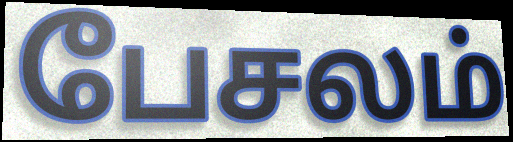
பேசலம்